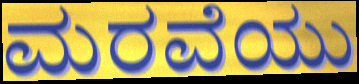
ಮರವೆಯು